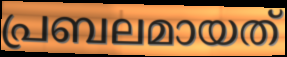
പ്രബലമായത്